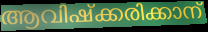
ആവിഷ്ക്കരിക്കാന്